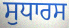
ਸੁਧਾਰਸ